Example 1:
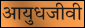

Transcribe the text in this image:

आयुधजीवी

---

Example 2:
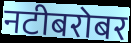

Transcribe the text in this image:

नटीबरोबर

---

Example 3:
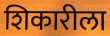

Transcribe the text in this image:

शिकारीला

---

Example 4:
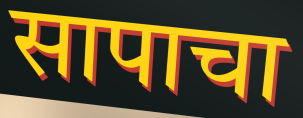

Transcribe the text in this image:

सापाचा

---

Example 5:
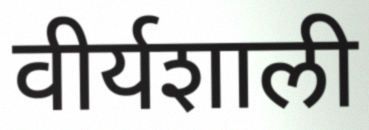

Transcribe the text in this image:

वीर्यशाली